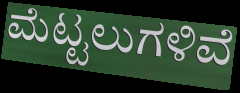
ಮೆಟ್ಟಲುಗಳಿವೆ